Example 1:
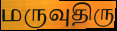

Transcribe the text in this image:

மருவுதிரு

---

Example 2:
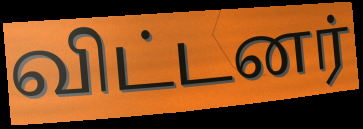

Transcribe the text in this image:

விட்டனர்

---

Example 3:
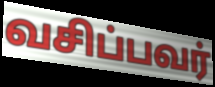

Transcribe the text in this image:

வசிப்பவர்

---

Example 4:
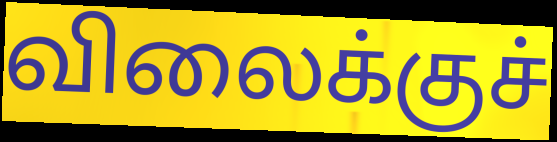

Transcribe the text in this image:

விலைக்குச்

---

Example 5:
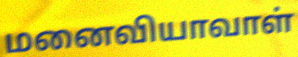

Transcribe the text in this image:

மனைவியாவாள்